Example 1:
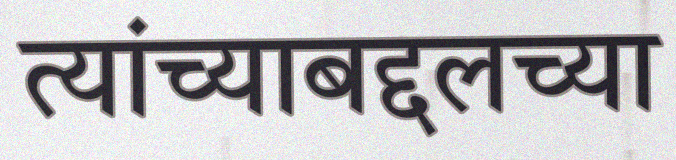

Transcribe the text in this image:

त्यांच्याबद्दलच्या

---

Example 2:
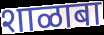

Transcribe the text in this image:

शाळाबा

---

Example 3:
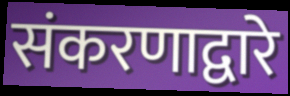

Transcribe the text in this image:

संकरणाद्वारे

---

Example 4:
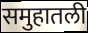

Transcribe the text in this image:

समुहातली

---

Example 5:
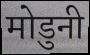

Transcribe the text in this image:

मोडुनी